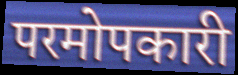
परमोपकारी